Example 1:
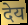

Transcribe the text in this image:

देय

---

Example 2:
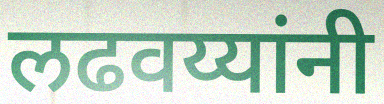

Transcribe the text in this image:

लढवय्यांनी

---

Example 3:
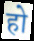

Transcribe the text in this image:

हो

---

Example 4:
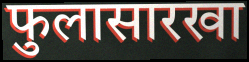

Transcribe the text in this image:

फुलासारखा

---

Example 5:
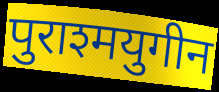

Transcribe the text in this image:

पुराश्मयुगीन